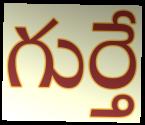
గుర్తే